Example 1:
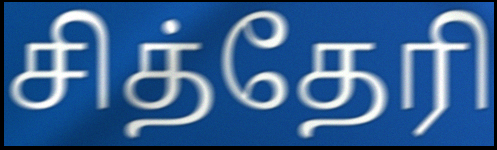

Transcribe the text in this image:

சித்தேரி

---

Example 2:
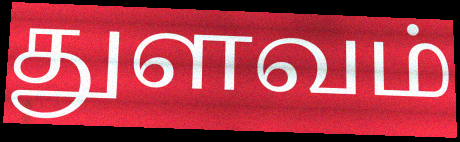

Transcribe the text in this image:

துளவம்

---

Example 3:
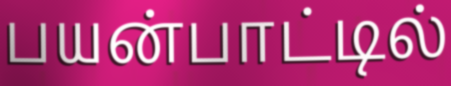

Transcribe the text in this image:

பயன்பாட்டில்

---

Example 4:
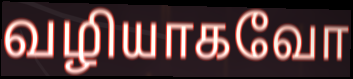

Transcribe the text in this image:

வழியாகவோ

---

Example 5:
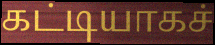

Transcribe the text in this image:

கட்டியாகச்